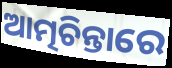
ଆତ୍ମଚିନ୍ତାରେ